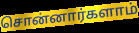
சொன்னார்களாம்